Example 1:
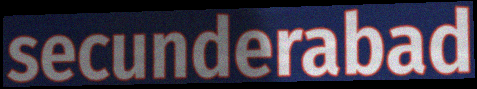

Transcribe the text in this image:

secunderabad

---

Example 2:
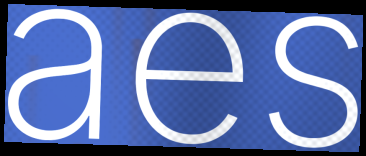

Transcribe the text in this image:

aes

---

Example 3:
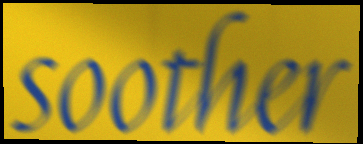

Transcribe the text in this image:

soother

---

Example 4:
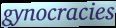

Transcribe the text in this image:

gynocracies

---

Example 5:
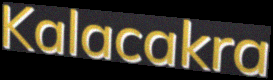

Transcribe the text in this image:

Kalacakra